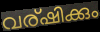
വര്ഷിക്കും